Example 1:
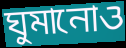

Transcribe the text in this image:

ঘুমানোও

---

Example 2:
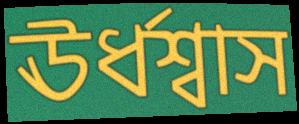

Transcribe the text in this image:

ঊর্ধশ্বাস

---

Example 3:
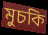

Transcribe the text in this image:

মুচকি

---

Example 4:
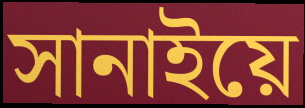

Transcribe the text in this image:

সানাইয়ে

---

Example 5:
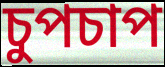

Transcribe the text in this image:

চুপচাপ